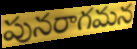
పునరాగమన